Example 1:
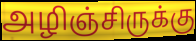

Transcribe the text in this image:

அழிஞ்சிருக்கு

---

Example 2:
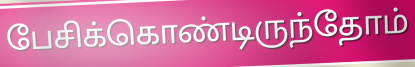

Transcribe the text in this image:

பேசிக்கொண்டிருந்தோம்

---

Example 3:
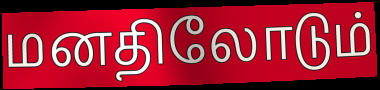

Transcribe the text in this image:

மனதிலோடும்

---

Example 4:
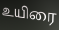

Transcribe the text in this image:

உயிரை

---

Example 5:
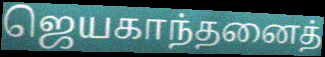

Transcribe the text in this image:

ஜெயகாந்தனைத்